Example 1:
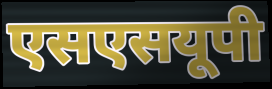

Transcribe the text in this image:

एसएसयूपी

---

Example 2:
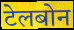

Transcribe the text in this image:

टेलबोन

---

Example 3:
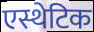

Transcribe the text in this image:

एस्थेटिक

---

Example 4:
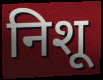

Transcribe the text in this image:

निशू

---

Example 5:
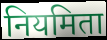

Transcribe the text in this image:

नियमिता